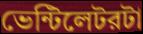
ভেন্টিলেটরটা